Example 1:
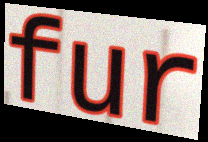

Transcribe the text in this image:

fur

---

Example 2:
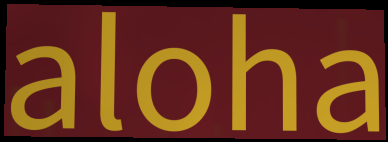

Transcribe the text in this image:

aloha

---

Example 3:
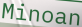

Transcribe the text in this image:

Minoan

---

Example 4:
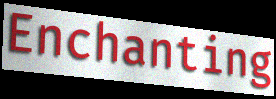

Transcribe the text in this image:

Enchanting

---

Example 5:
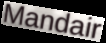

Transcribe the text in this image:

Mandair